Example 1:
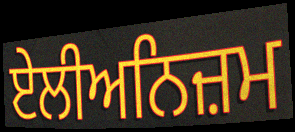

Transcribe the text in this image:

ਏਲੀਅਨਿਜ਼ਮ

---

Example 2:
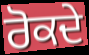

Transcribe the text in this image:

ਰੋਕਦੇ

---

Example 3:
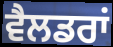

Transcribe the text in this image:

ਵੈਲਡਰਾਂ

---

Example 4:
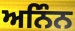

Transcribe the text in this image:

ਅਨਿੰਨ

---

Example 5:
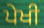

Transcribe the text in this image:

ਪੇਖੀ